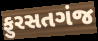
ફુરસતગંજ